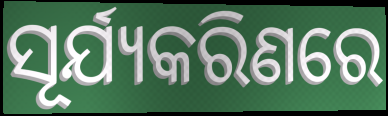
ସୂର୍ଯ୍ୟକରିଣରେ